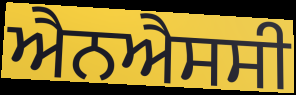
ਐਨਐਸਸੀ